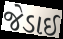
જેડાઈ